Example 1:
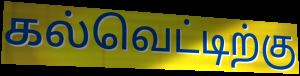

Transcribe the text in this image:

கல்வெட்டிற்கு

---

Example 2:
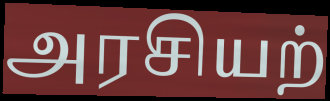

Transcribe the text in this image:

அரசியற்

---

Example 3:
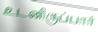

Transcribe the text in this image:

உடனிருப்பார்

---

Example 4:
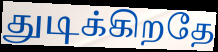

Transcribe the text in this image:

துடிக்கிறதே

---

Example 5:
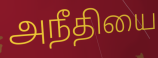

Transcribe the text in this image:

அநீதியை